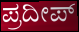
ಪ್ರದೀಪ್